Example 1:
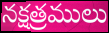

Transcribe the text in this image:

నక్షత్రములు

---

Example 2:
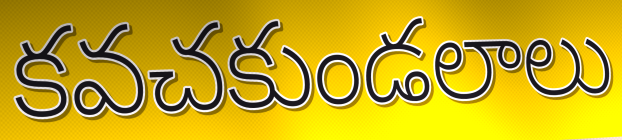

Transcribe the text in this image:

కవచకుండలాలు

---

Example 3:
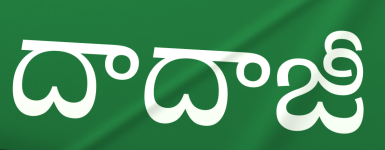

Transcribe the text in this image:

దాదాజీ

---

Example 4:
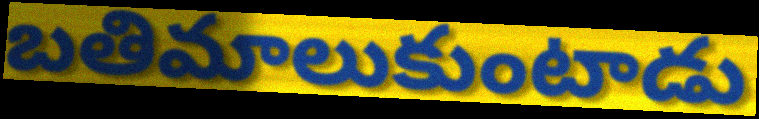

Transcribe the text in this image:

బతిమాలుకుంటాడు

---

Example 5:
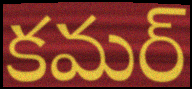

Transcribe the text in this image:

కమర్